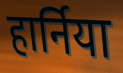
हार्निया